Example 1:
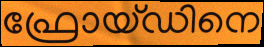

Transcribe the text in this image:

ഫ്രോയ്ഡിനെ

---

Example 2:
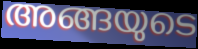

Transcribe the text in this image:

അങ്ങയുടെ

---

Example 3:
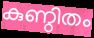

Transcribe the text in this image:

കുണ്ഠിതം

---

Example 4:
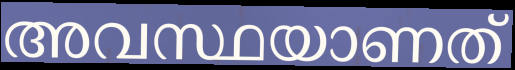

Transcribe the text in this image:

അവസ്ഥയാണത്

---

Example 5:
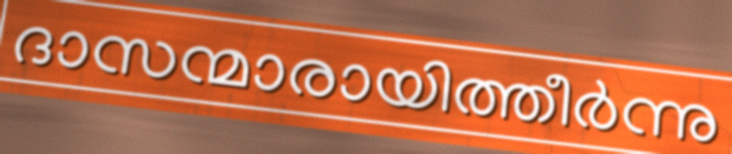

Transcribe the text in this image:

ദാസന്മാരായിത്തീർന്നു